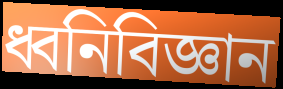
ধ্বনিবিজ্ঞান